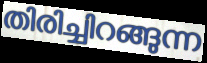
തിരിച്ചിറങ്ങുന്ന